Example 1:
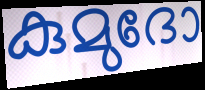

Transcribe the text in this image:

കുമുദോ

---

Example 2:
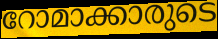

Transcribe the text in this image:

റോമാക്കാരുടെ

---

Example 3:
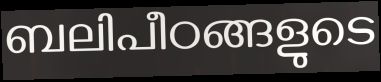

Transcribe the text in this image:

ബലിപീഠങ്ങളുടെ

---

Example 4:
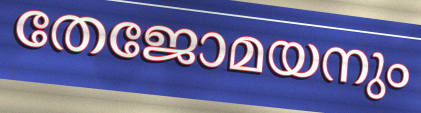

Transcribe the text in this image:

തേജോമയനും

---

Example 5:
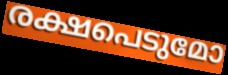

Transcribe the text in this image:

രക്ഷപെടുമോ